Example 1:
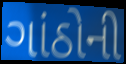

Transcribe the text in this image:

ગાંઠોની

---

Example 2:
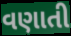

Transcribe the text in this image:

વણાતી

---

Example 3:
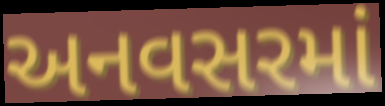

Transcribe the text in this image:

અનવસરમાં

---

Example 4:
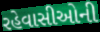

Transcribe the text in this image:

રહેવાસીઓની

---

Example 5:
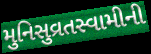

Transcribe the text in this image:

મુનિસુવ્રતસ્વામીની